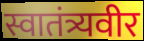
स्वातंत्र्यवीर